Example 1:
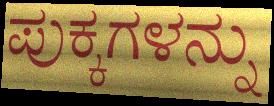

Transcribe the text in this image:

ಪುಕ್ಕಗಳನ್ನು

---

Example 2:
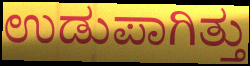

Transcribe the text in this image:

ಉಡುಪಾಗಿತ್ತು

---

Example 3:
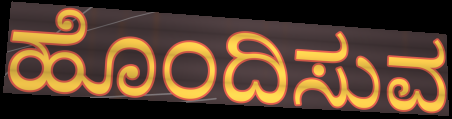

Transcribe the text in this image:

ಹೊಂದಿಸುವ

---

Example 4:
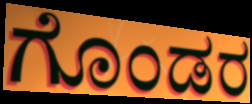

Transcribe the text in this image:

ಗೊಂಡರ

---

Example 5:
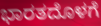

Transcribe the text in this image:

ಭಾರತದೊಳಗೆ